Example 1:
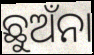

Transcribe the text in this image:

ଛୁଅଁନା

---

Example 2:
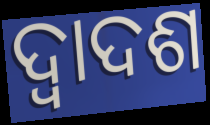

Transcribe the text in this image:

ଦ୍ବାଦଶ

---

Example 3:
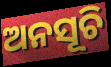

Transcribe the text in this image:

ଅନସୂଚି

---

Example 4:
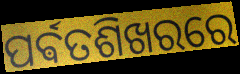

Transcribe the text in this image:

ପର୍ଵତଶିଖରରେ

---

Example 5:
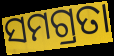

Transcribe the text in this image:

ସମଗ୍ରତା